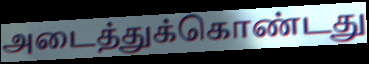
அடைத்துக்கொண்டது